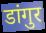
डांगुर